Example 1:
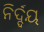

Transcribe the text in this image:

ନିର୍ଦ୍ଦୟ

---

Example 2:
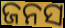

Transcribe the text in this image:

ଜନସ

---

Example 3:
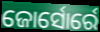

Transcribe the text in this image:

ଜୋର୍ସୋର୍ରେ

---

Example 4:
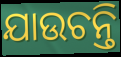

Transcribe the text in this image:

ଯାଉଚନ୍ତି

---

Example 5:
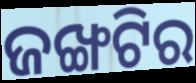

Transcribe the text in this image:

ଜଙ୍ଖଟିର